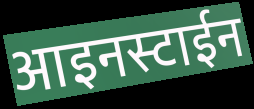
आइनस्टाईन